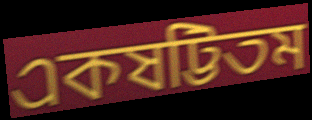
একষট্টিতম